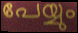
പേയ്യും